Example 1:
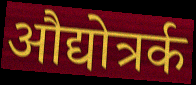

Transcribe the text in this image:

औद्योत्रर्क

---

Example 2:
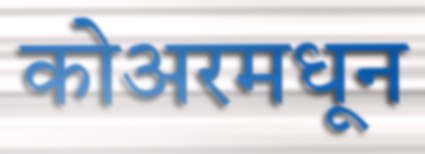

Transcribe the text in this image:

कोअरमधून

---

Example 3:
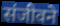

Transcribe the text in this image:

संजीवने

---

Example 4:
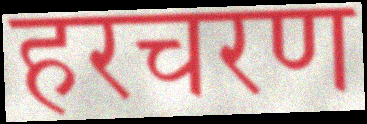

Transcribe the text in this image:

हरचरण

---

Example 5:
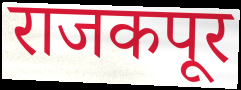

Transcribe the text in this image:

राजकपूर